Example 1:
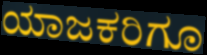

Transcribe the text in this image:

ಯಾಜಕರಿಗೂ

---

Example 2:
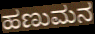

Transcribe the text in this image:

ಹಣುಮನ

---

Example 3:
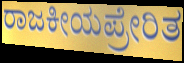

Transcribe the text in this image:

ರಾಜಕೀಯಪ್ರೇರಿತ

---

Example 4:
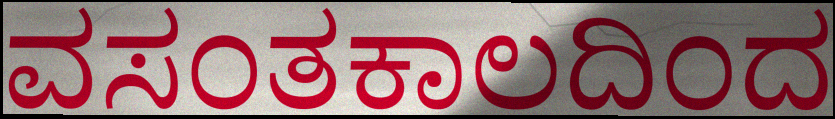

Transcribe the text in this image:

ವಸಂತಕಾಲದಿಂದ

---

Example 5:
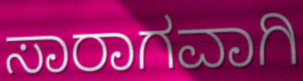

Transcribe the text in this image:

ಸಾರಾಗವಾಗಿ